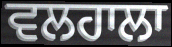
ਵਲਹਾਲਾ